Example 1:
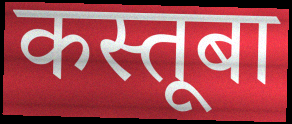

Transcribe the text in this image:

कस्तूबा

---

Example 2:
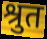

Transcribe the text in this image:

श्रुत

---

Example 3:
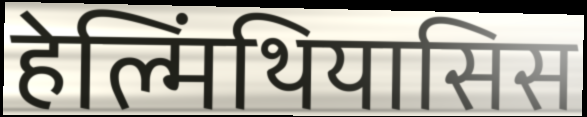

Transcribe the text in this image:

हेल्मिंथियासिस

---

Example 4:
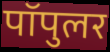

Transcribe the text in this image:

पॉपुलर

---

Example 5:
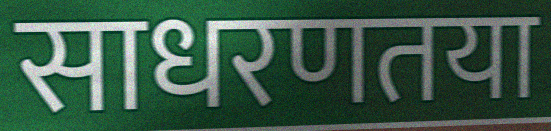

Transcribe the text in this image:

साधरणतया